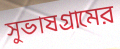
সুভাষগ্রামের